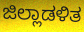
ಜಿಲ್ಲಾಡಳಿತ